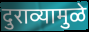
दुराव्यामुळे